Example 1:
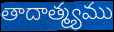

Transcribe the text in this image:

తాదాత్మ్యము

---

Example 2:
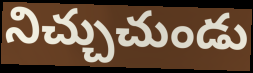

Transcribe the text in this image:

నిచ్చుచుండు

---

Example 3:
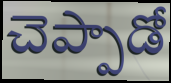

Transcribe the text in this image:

చెప్పాడో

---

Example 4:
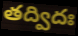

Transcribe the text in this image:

తద్విదః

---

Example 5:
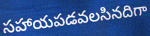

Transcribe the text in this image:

సహాయపడవలసినదిగా